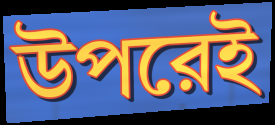
উপরেই